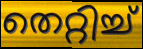
തെറ്റിച്ച്